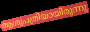
ആശുപത്രിയായിരുന്നു